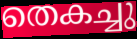
തെകച്ചു